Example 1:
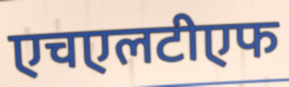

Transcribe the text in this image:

एचएलटीएफ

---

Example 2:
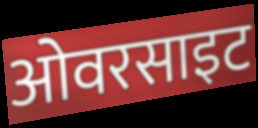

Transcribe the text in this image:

ओवरसाइट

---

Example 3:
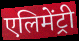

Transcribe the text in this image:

एलिमेंट्री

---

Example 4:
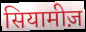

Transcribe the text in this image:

सियामीज़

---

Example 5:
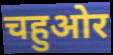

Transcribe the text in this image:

चहुओर